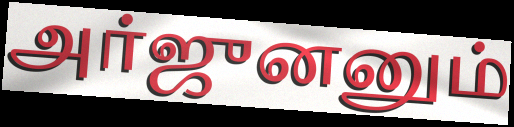
அர்ஜுனனும்